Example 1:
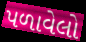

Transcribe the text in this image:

પળાવેલો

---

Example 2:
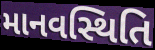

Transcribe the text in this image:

માનવસ્થિતિ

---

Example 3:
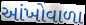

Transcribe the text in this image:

આંખોવાળા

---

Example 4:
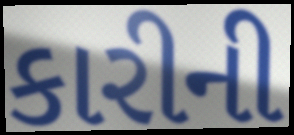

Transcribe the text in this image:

કારીની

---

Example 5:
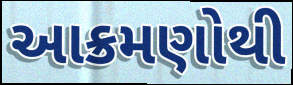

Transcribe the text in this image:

આક્રમણોથી